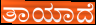
ತಾಯಾದೆ